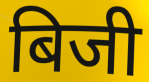
बिजी